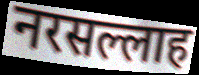
नरसल्लाह